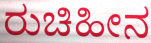
ರುಚಿಹೀನ